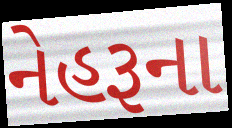
નેહરૂના